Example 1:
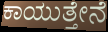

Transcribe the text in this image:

ಕಾಯುತ್ತೇನೆ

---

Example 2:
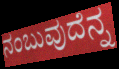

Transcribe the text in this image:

ನಂಬುವುದೆನ್ನ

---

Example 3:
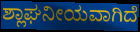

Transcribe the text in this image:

ಶ್ಲಾಘನೀಯವಾಗಿದೆ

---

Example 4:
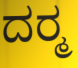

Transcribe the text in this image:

ದರ‍್ಮ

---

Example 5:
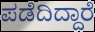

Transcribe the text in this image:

ಪಡೆದಿದ್ದಾರೆ